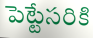
పెట్టేసరికి